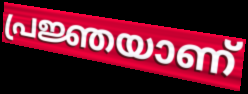
പ്രജ്ഞയാണ്